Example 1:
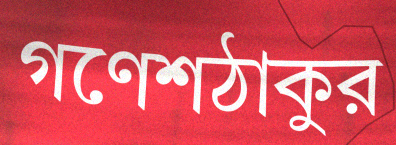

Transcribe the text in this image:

গণেশঠাকুর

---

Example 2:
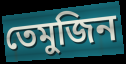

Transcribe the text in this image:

তেমুজিন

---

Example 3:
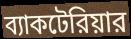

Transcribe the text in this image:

ব্যাকটেরিয়ার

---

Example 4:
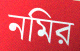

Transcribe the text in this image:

নমির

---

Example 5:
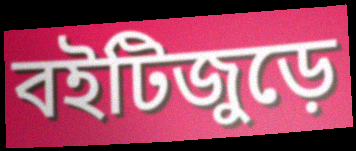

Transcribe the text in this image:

বইটিজুড়ে